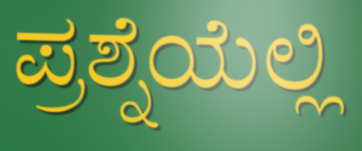
ಪ್ರಶ್ನೆಯೆಲ್ಲಿ